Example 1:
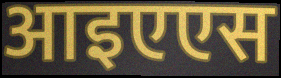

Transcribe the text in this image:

आइएएस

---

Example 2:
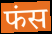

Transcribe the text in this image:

फंस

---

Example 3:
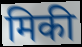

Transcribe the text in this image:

मिकी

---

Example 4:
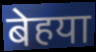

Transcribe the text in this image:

बेहया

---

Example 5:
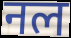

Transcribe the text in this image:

नल